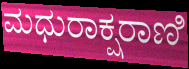
ಮಧುರಾಕ್ಷರಾಣಿ